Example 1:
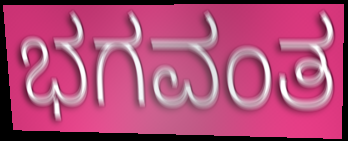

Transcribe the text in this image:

ಭಗವಂತ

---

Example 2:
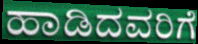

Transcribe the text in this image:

ಹಾಡಿದವರಿಗೆ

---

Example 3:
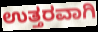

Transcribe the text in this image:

ಉತ್ತರವಾಗಿ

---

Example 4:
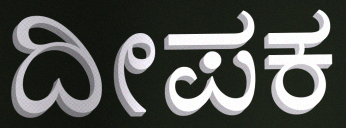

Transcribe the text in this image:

ದೀಪಕ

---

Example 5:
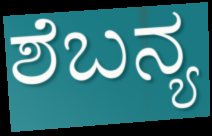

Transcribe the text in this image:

ಶೆಬನ್ಯ